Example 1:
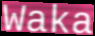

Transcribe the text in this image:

Waka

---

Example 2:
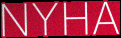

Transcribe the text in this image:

NYHA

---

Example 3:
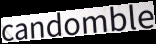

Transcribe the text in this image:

candomble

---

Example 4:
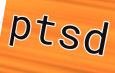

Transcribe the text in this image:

ptsd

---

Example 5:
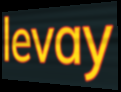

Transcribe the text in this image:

levay